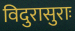
विदुरासुराः